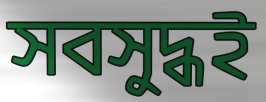
সবসুদ্ধই